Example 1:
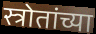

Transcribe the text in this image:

स्त्रोतांच्या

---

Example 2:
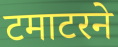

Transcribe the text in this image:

टमाटरने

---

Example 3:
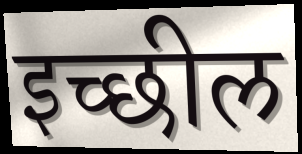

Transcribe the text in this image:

इच्छील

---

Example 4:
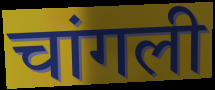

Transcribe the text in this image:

चांगली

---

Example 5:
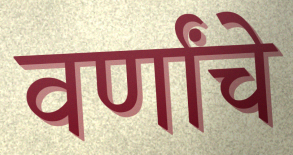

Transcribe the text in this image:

वर्णांचे